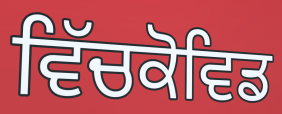
ਵਿੱਚਕੋਵਿਡ